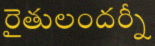
రైతులందర్నీ